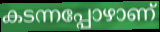
കടന്നപ്പോഴാണ്